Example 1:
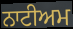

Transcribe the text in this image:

ਨਾਟੀਅਮ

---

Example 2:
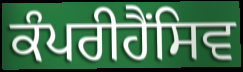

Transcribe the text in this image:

ਕੰਪਰੀਹੈਂਸਿਵ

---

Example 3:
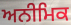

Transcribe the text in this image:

ਅਨੀਮਿਕ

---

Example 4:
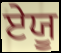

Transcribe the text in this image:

ਏਯੂ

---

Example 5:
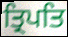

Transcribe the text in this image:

ਤ੍ਰਿਪਤਿ